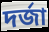
দৰ্জা